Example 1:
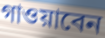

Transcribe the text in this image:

গাওয়াবেন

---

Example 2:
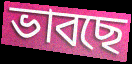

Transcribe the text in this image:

ভাবছে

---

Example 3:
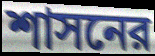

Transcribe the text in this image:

শাসনের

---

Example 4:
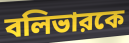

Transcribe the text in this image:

বলিভারকে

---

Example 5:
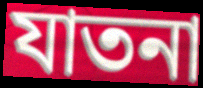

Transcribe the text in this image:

যাতনা